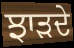
ਝਾੜਦੇ